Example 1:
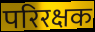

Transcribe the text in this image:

परिरक्षक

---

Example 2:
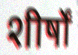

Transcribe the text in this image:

शीर्षों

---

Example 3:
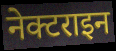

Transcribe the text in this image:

नेक्टराइन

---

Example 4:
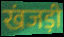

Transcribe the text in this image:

खंजड़ी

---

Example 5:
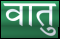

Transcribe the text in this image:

वातु